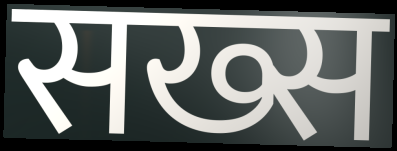
सख्स